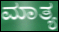
ಮಾತ್ಯ